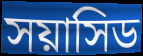
সয়াসিড